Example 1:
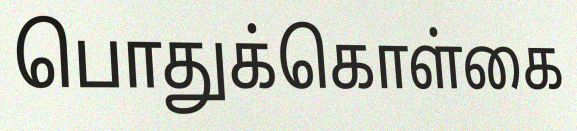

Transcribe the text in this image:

பொதுக்கொள்கை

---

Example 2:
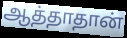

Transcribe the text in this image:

ஆத்தாதான்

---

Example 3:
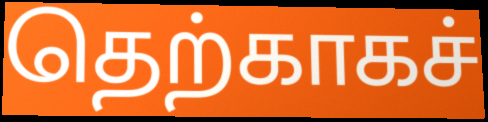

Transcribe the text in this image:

தெற்காகச்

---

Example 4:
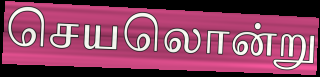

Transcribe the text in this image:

செயலொன்று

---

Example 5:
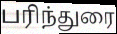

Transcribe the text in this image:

பரிந்துரை